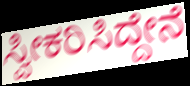
ಸ್ವೀಕರಿಸಿದ್ದೇನೆ